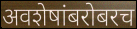
अवशेषांबरोबरच